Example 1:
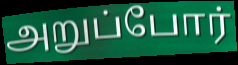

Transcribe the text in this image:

அறுப்போர்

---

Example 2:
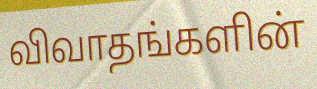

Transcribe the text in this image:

விவாதங்களின்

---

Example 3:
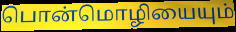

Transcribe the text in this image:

பொன்மொழியையும்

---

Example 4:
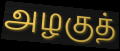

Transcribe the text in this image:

அழகுத்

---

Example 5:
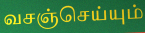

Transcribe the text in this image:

வசஞ்செய்யும்